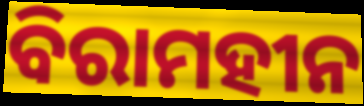
ବିରାମହୀନ